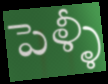
పెళ్ళీ